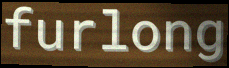
furlong